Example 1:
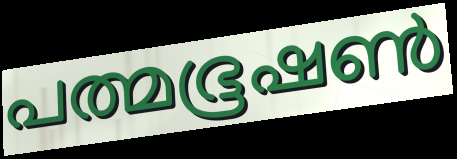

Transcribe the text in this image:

പത്മഭൂഷൺ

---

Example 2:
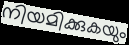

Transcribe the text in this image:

നിയമിക്കുകയും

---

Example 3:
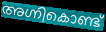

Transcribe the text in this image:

അഗ്നികൊണ്ട്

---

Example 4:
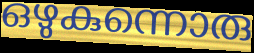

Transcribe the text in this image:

ഒഴുകുന്നൊരു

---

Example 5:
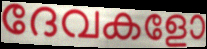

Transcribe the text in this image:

ദേവകളോ